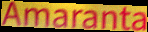
Amaranta